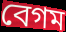
বেগম